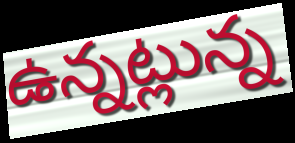
ఉన్నట్లున్న